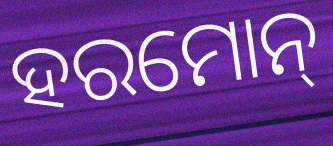
ହରମୋନ୍